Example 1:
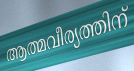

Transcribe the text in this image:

ആത്മവീര്യത്തിന്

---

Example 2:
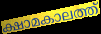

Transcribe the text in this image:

ക്ഷാമകാലത്ത്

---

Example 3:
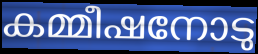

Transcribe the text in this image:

കമ്മീഷനോടു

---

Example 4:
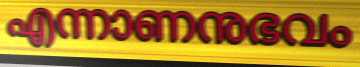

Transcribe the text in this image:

എന്നാണനുഭവം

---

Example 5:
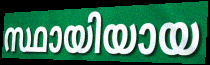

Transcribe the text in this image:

സ്ഥായിയായ